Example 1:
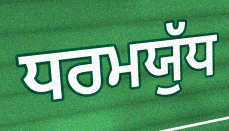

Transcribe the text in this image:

ਧਰਮਯੁੱਧ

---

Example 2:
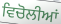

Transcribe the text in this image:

ਵਿਚੋਲੀਆਂ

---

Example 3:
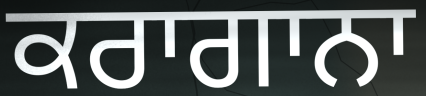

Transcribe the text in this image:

ਕਰਾਗਾਨਾ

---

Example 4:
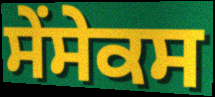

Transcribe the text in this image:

ਸੇਂਸੇਕਸ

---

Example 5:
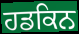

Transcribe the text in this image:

ਹਡਕਿਨ